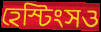
হেস্টিংসও